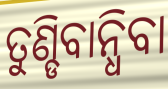
ତୁଣ୍ଡିବାନ୍ଧିବା